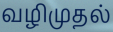
வழிமுதல்